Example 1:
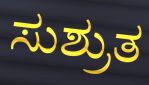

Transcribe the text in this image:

ಸುಶ್ರುತ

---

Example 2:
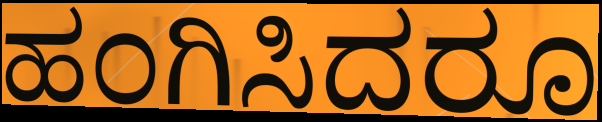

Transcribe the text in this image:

ಹಂಗಿಸಿದರೂ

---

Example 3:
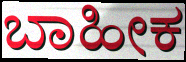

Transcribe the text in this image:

ಬಾಹೀಕ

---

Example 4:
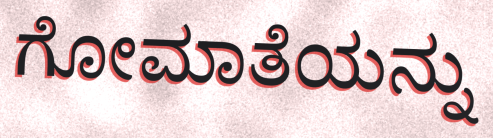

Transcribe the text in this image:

ಗೋಮಾತೆಯನ್ನು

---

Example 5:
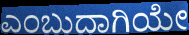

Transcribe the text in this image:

ಎಂಬುದಾಗಿಯೇ